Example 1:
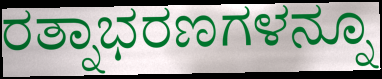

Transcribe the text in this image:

ರತ್ನಾಭರಣಗಳನ್ನೂ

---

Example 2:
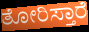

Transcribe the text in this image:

ತೋರಿಸ್ತಾರೆ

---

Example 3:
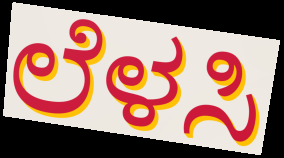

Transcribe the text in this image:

ಲೆಳಸಿ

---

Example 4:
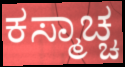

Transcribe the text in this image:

ಕಸ್ಮಾಚ್ಚ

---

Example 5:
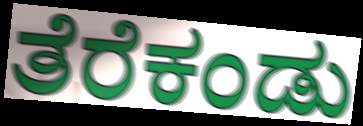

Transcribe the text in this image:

ತೆರೆಕಂಡು